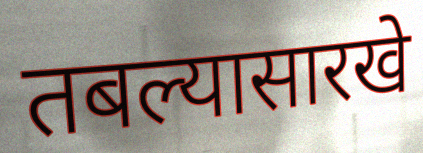
तबल्यासारखे